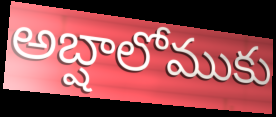
అబ్షాలోముకు